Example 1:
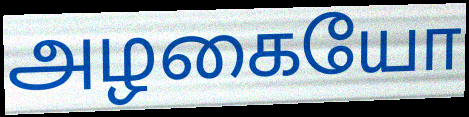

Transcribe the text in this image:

அழகையோ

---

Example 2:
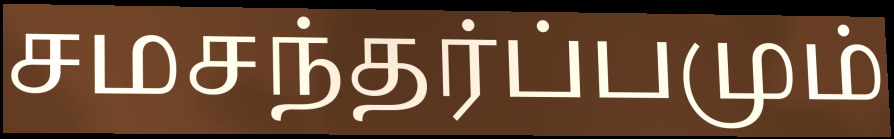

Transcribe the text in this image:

சமசந்தர்ப்பமும்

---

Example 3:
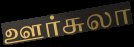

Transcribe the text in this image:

ஊர்சுலா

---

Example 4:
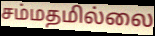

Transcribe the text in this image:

சம்மதமில்லை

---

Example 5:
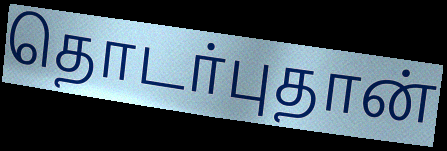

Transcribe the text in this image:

தொடர்புதான்